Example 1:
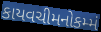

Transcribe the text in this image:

કાયવચીમનોકમ્મં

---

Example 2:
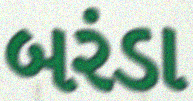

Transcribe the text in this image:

બરંડા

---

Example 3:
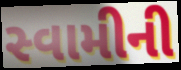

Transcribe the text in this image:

સ્વામીની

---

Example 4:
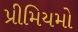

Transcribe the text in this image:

પ્રીમિયમો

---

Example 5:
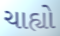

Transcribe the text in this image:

ચાહ્યો